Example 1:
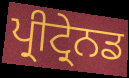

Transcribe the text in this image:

ਪ੍ਰੀਟ੍ਰੇਨਡ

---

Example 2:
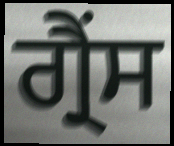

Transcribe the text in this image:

ਗ੍ਰੈਂਸ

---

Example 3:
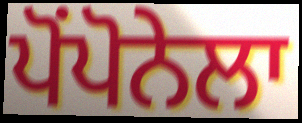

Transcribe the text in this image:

ਪੋਂਪੋਨੇਲਾ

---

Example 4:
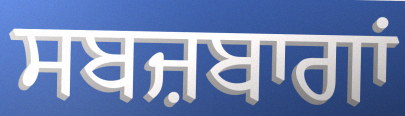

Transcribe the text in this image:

ਸਬਜ਼ਬਾਗਾਂ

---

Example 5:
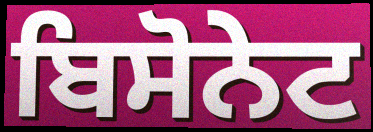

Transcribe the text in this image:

ਬਿਸੋਨੇਟ